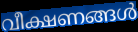
വീക്ഷണങ്ങൾ